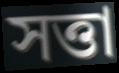
সত্তা